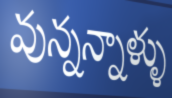
వున్నన్నాళ్ళు